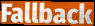
Fallback